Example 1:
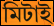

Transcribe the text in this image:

মিটাই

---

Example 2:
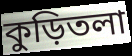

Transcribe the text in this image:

কুড়িতলা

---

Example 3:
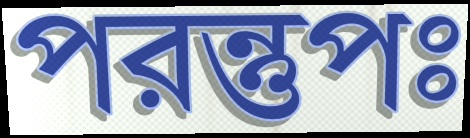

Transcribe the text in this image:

পরন্তুপঃ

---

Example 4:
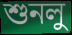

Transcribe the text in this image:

শুনলু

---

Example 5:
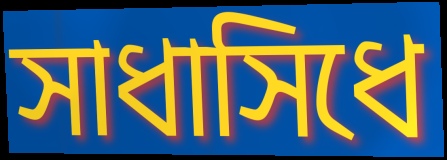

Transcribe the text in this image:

সাধাসিধে